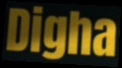
Digha